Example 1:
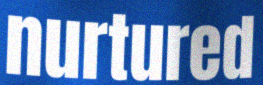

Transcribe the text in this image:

nurtured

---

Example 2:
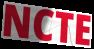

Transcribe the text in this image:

NCTE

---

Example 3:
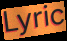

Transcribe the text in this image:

Lyric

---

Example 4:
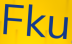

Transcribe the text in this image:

Fku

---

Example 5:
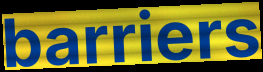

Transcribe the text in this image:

barriers